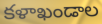
కళాఖండాల